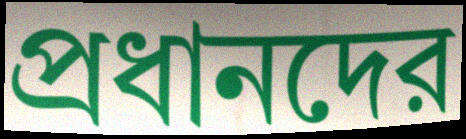
প্রধানদের